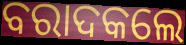
ବରାଦକଲେ